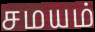
சமயம்